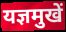
यज्ञमुखें